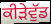
ਕੀੜੇਵੁੱਡ